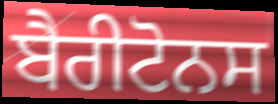
ਬੈਰੀਟੋਨਸ